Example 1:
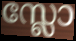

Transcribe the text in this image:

സ്ലോ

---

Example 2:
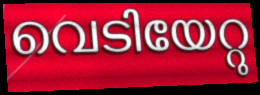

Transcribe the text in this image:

വെടിയേറ്റു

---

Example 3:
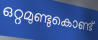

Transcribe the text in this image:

ഒറ്റമുണ്ടുകൊണ്ട്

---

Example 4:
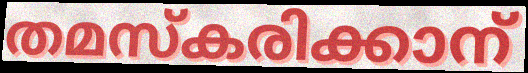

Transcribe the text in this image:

തമസ്കരിക്കാന്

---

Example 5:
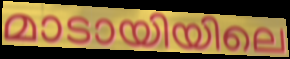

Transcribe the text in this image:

മാടായിയിലെ